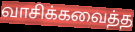
வாசிக்கவைத்த